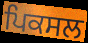
ਪਿਕਸਲ